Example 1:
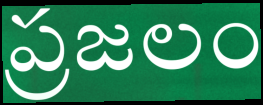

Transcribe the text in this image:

ప్రజలం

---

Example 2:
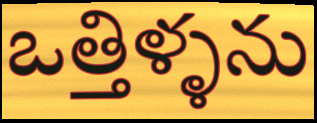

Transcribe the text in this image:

ఒత్తిళ్ళను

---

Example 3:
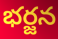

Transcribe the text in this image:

భర్జన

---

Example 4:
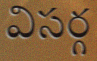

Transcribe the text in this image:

విసర్గ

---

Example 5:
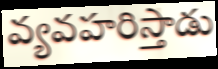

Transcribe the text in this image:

వ్యవహరిస్తాడు